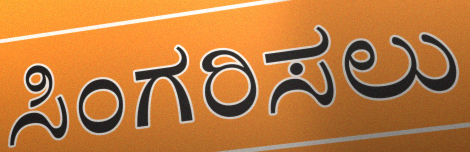
ಸಿಂಗರಿಸಲು